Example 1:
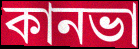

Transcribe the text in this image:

কানভা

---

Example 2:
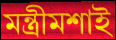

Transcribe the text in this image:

মন্ত্রীমশাই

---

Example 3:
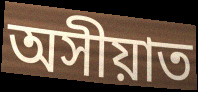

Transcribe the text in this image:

অসীয়াত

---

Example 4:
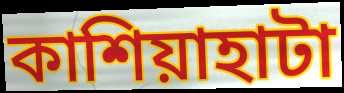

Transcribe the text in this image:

কাশিয়াহাটা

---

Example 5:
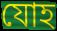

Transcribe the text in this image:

যোহ